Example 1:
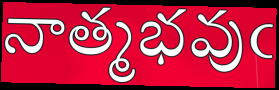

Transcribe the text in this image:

నాత్మభవుఁ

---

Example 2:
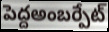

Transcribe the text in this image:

పెద్దఅంబర్పేట్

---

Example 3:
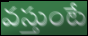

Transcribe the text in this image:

వస్తుంటే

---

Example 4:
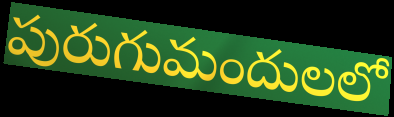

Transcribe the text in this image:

పురుగుమందులలో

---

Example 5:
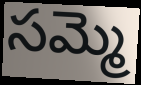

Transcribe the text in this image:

సమ్మె